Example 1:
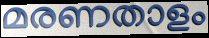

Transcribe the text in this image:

മരണതാളം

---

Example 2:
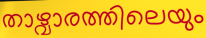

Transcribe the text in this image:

താഴ്വാരത്തിലെയും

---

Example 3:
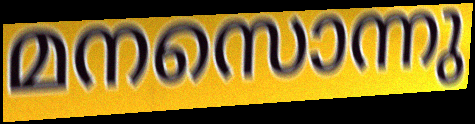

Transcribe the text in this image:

മനസൊന്നു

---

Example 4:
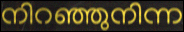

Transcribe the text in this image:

നിറഞ്ഞുനിന്ന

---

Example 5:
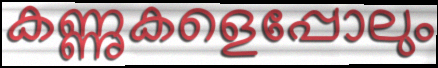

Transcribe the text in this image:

കണ്ണുകളെപ്പോലും